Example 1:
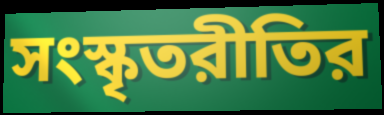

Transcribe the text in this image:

সংস্কৃতরীতির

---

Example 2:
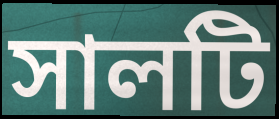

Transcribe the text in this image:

সালটি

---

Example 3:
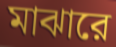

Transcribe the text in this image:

মাঝারে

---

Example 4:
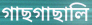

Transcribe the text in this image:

গাছগাছালি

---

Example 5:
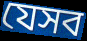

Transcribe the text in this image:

যেসব